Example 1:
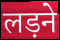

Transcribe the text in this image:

लड़ने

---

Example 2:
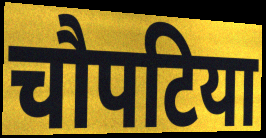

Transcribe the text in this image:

चौपटिया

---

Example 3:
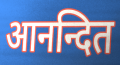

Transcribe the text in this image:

आनन्दित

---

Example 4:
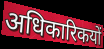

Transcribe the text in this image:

अधिकारिकयों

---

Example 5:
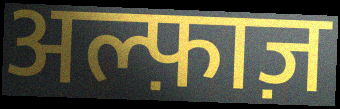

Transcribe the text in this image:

अल्फ़ाज़